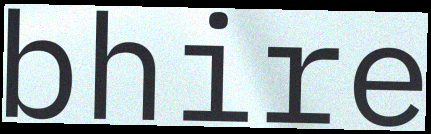
bhire